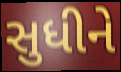
સુધીને